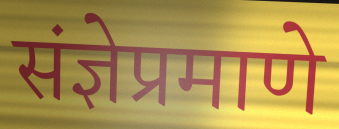
संज्ञेप्रमाणे